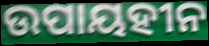
ଉପାୟହୀନ